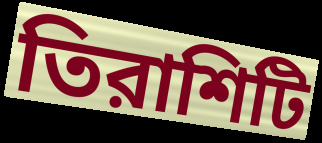
তিরাশিটি